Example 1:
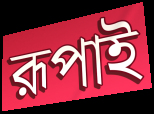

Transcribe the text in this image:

রূপাই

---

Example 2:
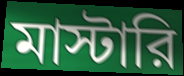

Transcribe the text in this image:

মাস্টারি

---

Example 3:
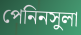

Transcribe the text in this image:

পেনিনসুলা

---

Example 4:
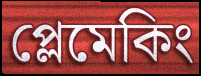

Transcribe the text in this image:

প্লেমেকিং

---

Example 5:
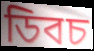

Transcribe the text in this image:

ডিবচ